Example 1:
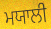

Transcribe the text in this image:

ਮਯਾਲੀ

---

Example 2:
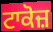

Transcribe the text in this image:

ਟਾਕੋਜ਼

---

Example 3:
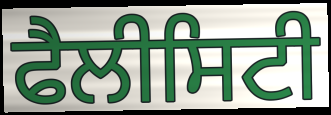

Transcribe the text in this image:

ਫੈਲੀਸਿਟੀ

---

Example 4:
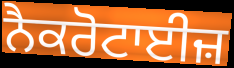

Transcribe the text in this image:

ਨੈਕਰੋਟਾਈਜ਼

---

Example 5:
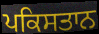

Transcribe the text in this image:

ਪਕਿਸਤਾਨ